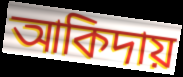
আকিদায়